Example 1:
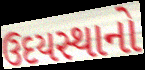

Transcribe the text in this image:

ઉદયસ્થાનો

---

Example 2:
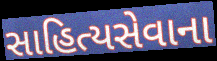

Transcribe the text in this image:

સાહિત્યસેવાના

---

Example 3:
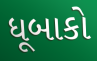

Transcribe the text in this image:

ધૂબાકો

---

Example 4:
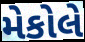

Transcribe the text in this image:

મેકોલે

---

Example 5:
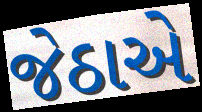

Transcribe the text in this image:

જેઠાએ